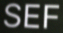
SEF